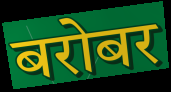
बरोबर